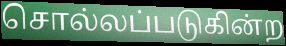
சொல்லப்படுகின்ற